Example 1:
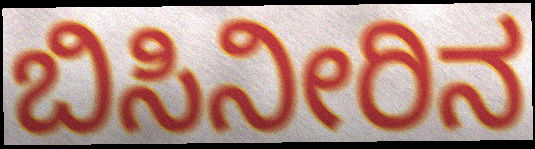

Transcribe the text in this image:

ಬಿಸಿನೀರಿನ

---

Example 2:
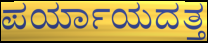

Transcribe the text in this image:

ಪರ್ಯಾಯದತ್ತ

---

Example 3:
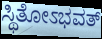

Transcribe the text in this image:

ಸ್ಥಿತೋಽಭವತ್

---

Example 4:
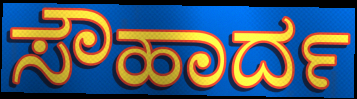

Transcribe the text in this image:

ಸೌಹಾರ್ದ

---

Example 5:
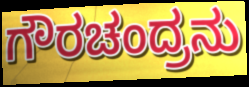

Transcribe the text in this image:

ಗೌರಚಂದ್ರನು